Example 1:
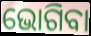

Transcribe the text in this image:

ଭୋଗିବା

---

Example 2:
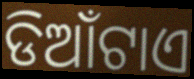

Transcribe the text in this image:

ଡିଆଁଟାଏ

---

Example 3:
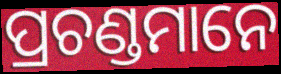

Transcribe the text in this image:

ପ୍ରଚଣ୍ଡମାନେ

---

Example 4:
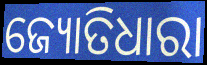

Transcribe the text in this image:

ଜ୍ଯୋତିଧାରା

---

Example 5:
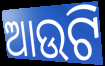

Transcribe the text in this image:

ଆଉଟି